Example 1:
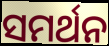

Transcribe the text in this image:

ସମର୍ଥନ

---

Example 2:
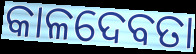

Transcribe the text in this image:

କାଳଦେବତା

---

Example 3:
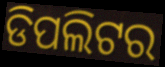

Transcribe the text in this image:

ଡିପଲିଟର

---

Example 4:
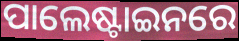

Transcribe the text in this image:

ପାଲେଷ୍ଟାଇନରେ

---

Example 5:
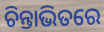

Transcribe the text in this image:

ଚିନ୍ତାଭିତରେ